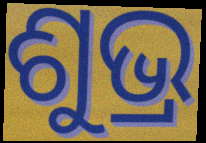
ଶୁଭ୍ର